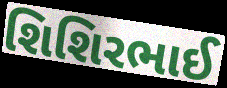
શિશિરભાઈ